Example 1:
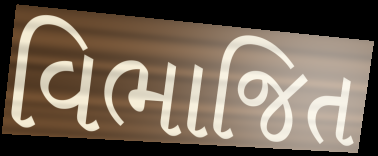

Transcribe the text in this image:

વિભાજિત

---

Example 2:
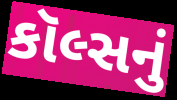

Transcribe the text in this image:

કૉલ્સનું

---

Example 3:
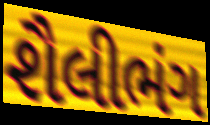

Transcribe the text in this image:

શૈલીભંગ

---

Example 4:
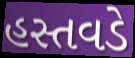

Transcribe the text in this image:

હસ્તવડે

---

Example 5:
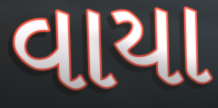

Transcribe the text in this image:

વાયા